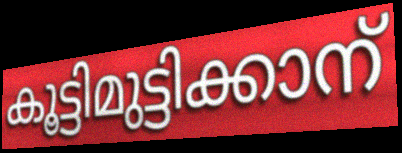
കൂട്ടിമുട്ടിക്കാന്